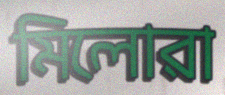
মিলোৱা